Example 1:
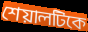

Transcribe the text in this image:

শেয়ালটিকে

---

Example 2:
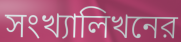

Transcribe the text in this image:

সংখ্যালিখনের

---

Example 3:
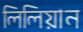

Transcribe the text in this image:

লিলিয়ান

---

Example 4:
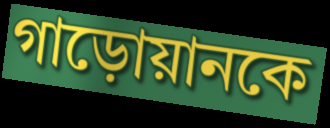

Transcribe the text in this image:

গাড়োয়ানকে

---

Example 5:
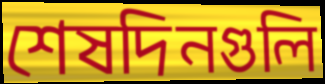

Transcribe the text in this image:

শেষদিনগুলি